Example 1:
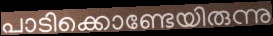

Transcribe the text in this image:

പാടിക്കൊണ്ടേയിരുന്നു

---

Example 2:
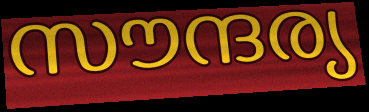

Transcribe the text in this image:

സൗന്ദര്യ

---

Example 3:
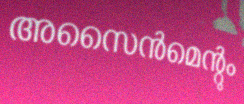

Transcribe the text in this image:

അസൈൻമെന്റും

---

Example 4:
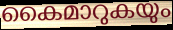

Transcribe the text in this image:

കൈമാറുകയും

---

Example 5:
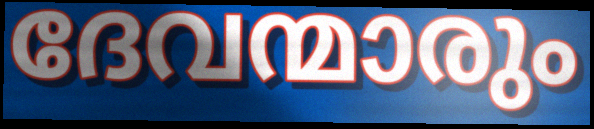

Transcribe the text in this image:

ദേവന്മാരും